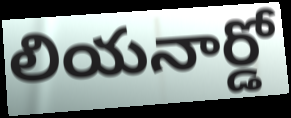
లియనార్డో